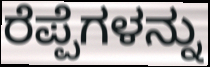
ರೆಪ್ಪೆಗಳನ್ನು